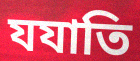
যযাতি